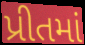
પ્રીતમાં